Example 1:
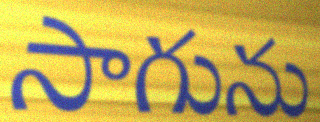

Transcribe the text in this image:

సాగును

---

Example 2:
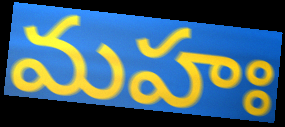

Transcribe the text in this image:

మహః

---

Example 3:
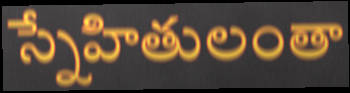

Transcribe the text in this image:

స్నేహితులంతా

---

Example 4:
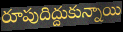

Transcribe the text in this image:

రూపుదిద్దుకున్నాయి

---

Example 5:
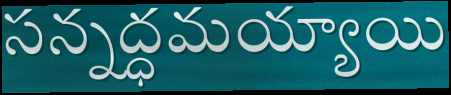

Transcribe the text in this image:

సన్నద్ధమయ్యాయి